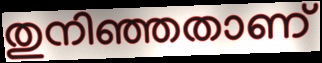
തുനിഞ്ഞതാണ്